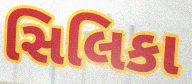
સિલિકા